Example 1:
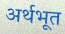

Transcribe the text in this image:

अर्थभूत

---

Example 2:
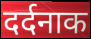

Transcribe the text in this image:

दर्दनाक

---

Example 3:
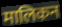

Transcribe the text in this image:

मालिकन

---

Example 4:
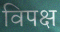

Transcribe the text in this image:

विपक्ष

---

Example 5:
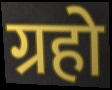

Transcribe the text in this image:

ग्रहो